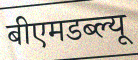
बीएमडब्ल्यू